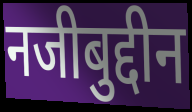
नजीबुद्दीन